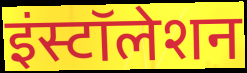
इंस्टॉलेशन